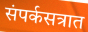
संपर्कसत्रात